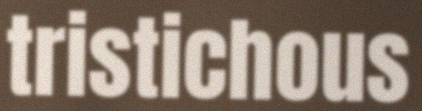
tristichous